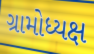
ગ્રામોધ્યક્ષ